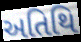
અતિથિ